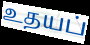
உதயப்